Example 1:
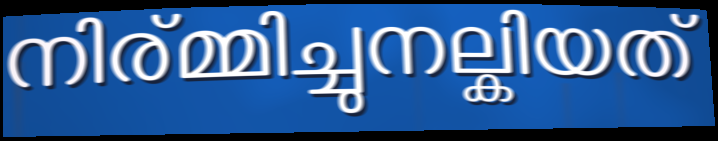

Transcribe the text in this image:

നിര്മ്മിച്ചുനല്കിയത്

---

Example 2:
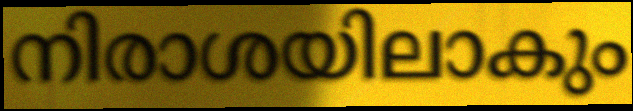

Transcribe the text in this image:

നിരാശയിലാകും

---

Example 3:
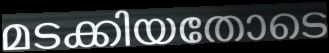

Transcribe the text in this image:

മടക്കിയതോടെ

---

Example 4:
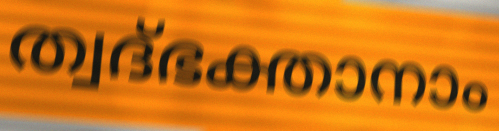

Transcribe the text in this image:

ത്വദ്ഭക്താനാം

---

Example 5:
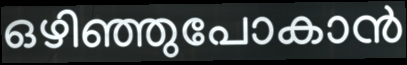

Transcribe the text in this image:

ഒഴിഞ്ഞുപോകാൻ